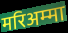
मरिअम्मा